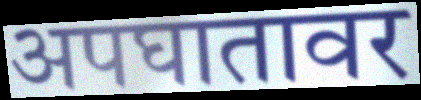
अपघातावर